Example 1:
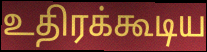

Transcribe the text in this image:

உதிரக்கூடிய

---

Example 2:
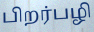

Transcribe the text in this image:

பிறர்பழி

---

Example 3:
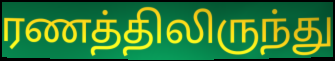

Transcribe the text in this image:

ரணத்திலிருந்து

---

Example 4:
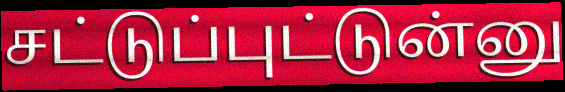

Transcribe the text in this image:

சட்டுப்புட்டுன்னு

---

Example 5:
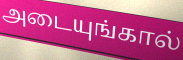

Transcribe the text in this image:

அடையுங்கால்